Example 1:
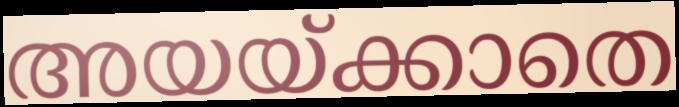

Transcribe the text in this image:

അയയ്ക്കാതെ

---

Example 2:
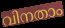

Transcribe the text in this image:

വിനതാം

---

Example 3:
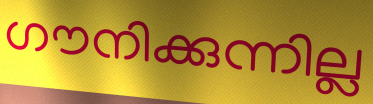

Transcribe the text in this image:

ഗൗനിക്കുന്നില്ല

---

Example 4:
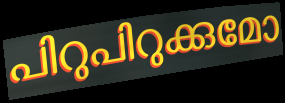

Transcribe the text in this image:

പിറുപിറുക്കുമോ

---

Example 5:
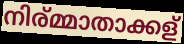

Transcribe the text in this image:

നിര്മ്മാതാക്കള്